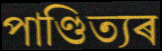
পাণ্ডিত্যৰ